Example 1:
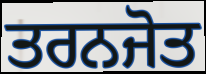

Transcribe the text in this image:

ਤਰਨਜੋਤ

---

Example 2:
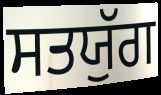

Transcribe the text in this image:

ਸਤਯੁੱਗ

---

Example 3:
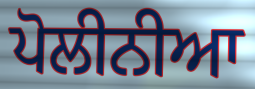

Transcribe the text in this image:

ਪੋਲੀਨੀਆ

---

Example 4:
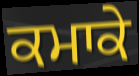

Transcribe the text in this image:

ਕਮਾਕੇ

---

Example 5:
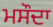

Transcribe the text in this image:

ਮਸੌਦਾ